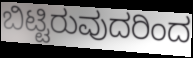
ಬಿಟ್ಟಿರುವುದರಿಂದ